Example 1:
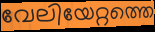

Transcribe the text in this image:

വേലിയേറ്റത്തെ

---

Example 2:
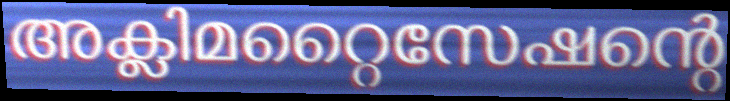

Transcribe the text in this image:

അക്ലിമറ്റൈസേഷന്റെ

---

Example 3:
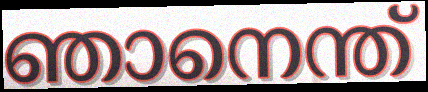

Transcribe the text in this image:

ഞാനെന്ത്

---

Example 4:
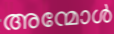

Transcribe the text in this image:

അന്മോൾ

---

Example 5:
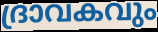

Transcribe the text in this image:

ദ്രാവകവും